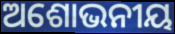
ଅଶୋଭନୀୟ